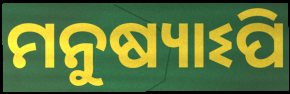
ମନୁଷ୍ୟାଽପି